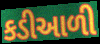
કડીઆળી